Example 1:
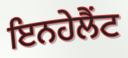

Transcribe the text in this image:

ਇਨਹੇਲੈਂਟ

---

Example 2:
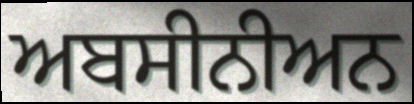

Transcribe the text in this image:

ਅਬਸੀਨੀਅਨ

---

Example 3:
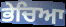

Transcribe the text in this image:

ਭੇਚਿਆ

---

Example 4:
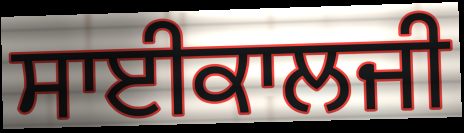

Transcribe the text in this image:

ਸਾਈਕਾਲਜੀ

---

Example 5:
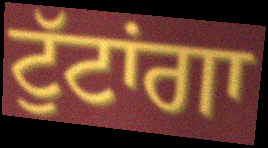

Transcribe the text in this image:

ਟੁੱਟਾਂਗਾ